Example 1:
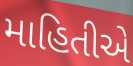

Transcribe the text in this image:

માહિતીએ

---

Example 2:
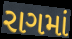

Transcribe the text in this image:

રાગમાં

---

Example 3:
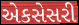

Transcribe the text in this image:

એકસેસરી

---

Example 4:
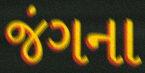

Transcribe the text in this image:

જંગના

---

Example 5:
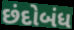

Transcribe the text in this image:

છંદોબંધ